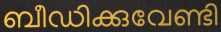
ബീഡിക്കുവേണ്ടി